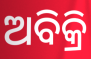
ଅବିକ୍ରି